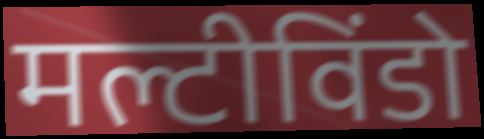
मल्टीविंडो